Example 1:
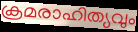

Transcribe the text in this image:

ക്രമരാഹിത്യവും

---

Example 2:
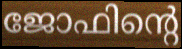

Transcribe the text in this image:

ജോഫിന്റെ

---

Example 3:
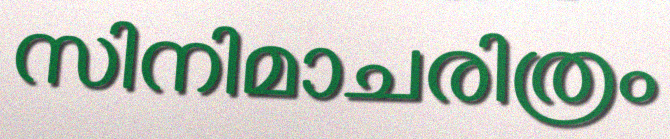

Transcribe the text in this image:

സിനിമാചരിത്രം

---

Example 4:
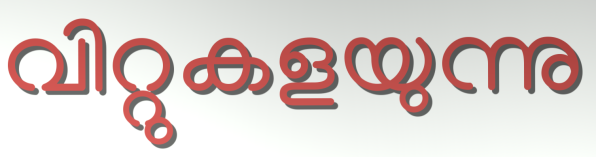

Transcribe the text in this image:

വിറ്റുകളയുന്നു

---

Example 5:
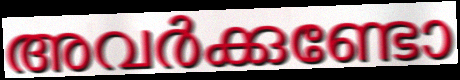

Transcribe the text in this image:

അവർക്കുണ്ടോ